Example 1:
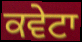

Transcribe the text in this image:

ਕਵੇਟਾ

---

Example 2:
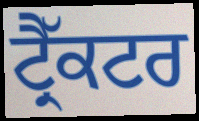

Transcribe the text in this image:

ਟ੍ਰੈੱਕਟਰ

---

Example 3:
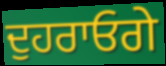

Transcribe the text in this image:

ਦੁਹਰਾਓਗੇ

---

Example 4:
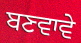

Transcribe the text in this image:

ਬਣਵਾਵੇ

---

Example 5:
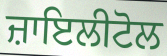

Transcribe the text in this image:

ਜ਼ਾਇਲੀਟੋਲ